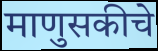
माणुसकीचे